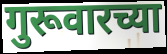
गुरूवारच्या